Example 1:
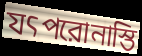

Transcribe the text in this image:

যৎপরোনাস্তি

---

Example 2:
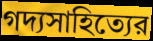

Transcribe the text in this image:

গদ্যসাহিত্যের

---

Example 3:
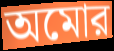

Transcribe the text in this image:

অমোর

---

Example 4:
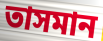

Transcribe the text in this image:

তাসমান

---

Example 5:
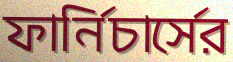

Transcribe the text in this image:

ফার্নিচার্সের